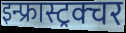
इन्फ्रास्ट्रक्‍चर